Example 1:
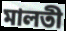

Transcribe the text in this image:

মালতী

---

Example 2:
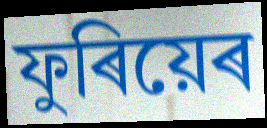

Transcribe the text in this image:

ফুৰিয়েৰ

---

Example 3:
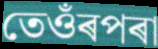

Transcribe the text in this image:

তেওঁৰপৰা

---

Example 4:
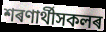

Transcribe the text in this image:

শৰণাৰ্থীসকলৰ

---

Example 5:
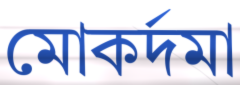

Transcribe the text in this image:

মোকৰ্দমা